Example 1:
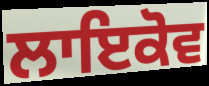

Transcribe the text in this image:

ਲਾਇਕੋਵ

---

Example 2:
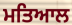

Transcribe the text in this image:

ਮਤਿਆਲ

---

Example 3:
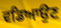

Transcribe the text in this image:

ਵਡਿਆਉਣ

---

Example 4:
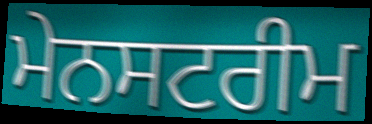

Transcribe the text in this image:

ਮੇਨਸਟਰੀਮ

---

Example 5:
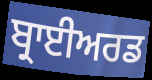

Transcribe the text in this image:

ਬ੍ਰਾਈਅਰਡ